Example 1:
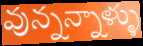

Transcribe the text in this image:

వున్నన్నాళ్ళు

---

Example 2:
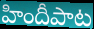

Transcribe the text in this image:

హిందీపాట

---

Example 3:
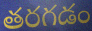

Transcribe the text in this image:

తరగడం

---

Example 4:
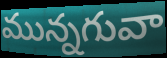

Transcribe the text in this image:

మున్నగువా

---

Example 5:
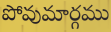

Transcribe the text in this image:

పోవుమార్గము